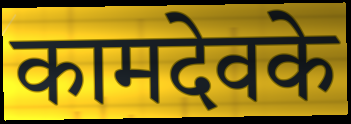
कामदेवके